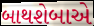
બાથશેબાએ